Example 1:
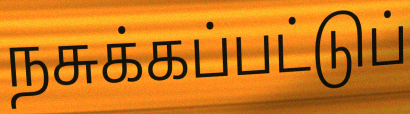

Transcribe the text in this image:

நசுக்கப்பட்டுப்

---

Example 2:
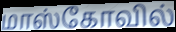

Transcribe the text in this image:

மாஸ்கோவில்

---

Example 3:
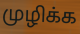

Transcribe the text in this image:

முழிக்க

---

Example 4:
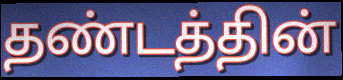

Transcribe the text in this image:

தண்டத்தின்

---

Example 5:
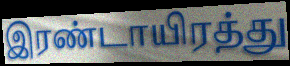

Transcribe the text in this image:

இரண்டாயிரத்து